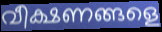
വീക്ഷണങ്ങളെ